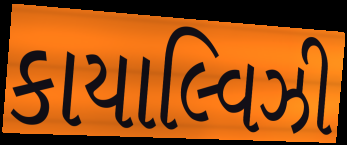
કાયાલ્વિઝી